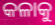
କଳାକୁ